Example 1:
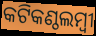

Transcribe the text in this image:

କଟିକଣ୍ଠଲମ୍ବୀ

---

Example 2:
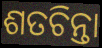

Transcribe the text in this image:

ଶତଚିନ୍ତା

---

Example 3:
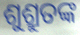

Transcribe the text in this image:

ଶୁଶ୍ରୁତଙ୍କ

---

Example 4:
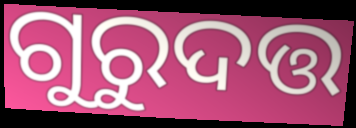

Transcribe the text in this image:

ଗୁରୁଦତ୍ତ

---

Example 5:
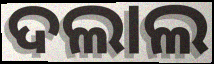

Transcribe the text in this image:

ଦଲାଲ